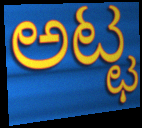
ಅಟ್ಟ